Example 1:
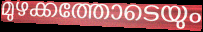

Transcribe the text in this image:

മുഴക്കത്തോടെയും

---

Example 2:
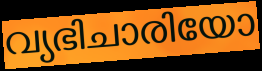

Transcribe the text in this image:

വ്യഭിചാരിയോ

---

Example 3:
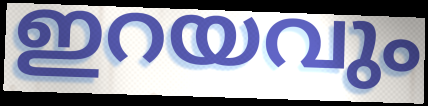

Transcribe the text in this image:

ഇറയവും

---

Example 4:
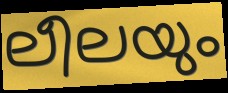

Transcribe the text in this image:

ലീലയും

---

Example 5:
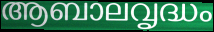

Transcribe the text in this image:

ആബാലവൃദ്ധം